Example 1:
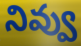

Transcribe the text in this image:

నివ్వు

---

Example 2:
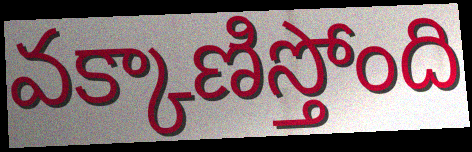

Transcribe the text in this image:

వక్కాణిస్తోంది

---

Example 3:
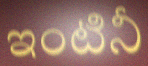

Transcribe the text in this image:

ఇంటినీ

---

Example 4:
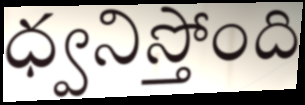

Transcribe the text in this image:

ధ్వనిస్తోంది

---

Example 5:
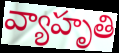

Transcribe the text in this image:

వ్యాహృతి